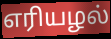
எரியழல்